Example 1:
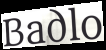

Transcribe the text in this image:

Badlo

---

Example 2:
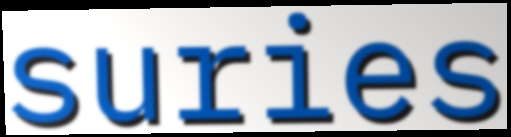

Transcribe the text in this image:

suries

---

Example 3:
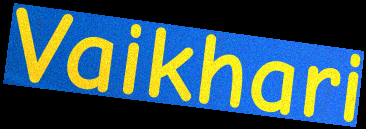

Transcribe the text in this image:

Vaikhari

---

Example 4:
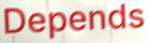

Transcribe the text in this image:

Depends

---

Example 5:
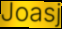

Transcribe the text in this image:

Joasj